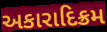
અકારાદિક્રમ